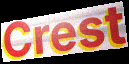
Crest